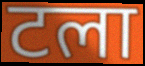
टला